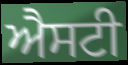
ਐਸਟੀ